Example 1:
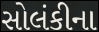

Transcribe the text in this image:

સોલંકીના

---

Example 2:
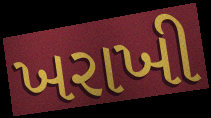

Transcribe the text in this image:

ખરાખી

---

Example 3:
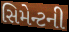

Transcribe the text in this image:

સિમેન્ટની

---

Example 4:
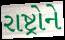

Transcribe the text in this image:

રાષ્ટ્રોને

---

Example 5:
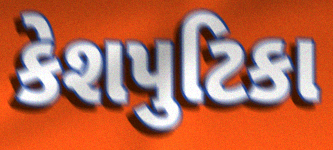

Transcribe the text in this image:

કેશપુટિકા